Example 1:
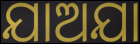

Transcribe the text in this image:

ଯାଅଯା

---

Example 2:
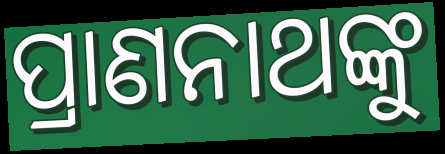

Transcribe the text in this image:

ପ୍ରାଣନାଥଙ୍କୁ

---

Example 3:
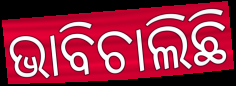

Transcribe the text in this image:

ଭାବିଚାଲିଛି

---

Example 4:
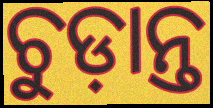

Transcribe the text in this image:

ଚୁଡ଼ାନ୍ତ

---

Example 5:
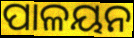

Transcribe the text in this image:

ପାଳୟନ